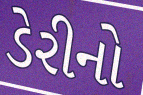
ડેરીનો